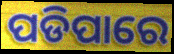
ପଡିପାରେ